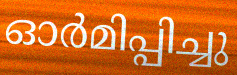
ഓർമിപ്പിച്ചു